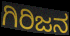
ಗಿರಿಜನ